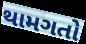
થામગતો